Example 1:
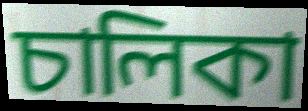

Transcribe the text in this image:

চালিকা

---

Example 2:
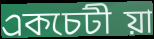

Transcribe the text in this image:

একচেটীয়া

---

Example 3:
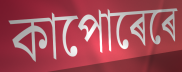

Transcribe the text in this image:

কাপোৰেৰে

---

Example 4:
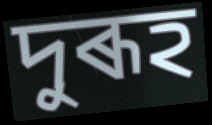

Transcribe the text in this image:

দুৰূহ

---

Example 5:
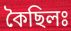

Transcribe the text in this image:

কৈছিলঃ